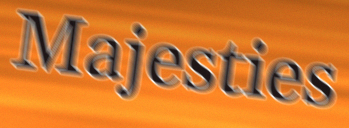
Majesties